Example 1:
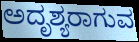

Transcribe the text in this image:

ಅದೃಶ್ಯರಾಗುವ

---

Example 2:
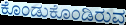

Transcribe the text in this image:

ಕೊಂಡುಕೊಂಡಿರುವ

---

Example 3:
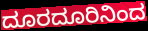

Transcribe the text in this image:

ದೂರದೂರಿನಿಂದ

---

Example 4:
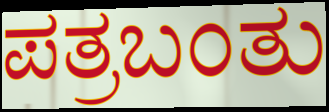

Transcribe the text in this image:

ಪತ್ರಬಂತು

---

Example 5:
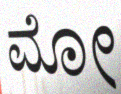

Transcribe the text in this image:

ಮೋ